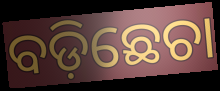
ବଡ଼ିଛେଚା